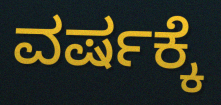
ವರ್ಷಕ್ಕೆ